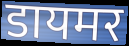
डायमर